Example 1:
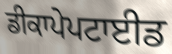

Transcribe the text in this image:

ਡੀਕਾਪੇਪਟਾਈਡ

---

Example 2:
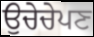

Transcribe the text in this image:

ਉਚੇਚੇਪਣ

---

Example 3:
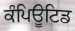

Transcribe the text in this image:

ਕੰਪਿਊਟਿਡ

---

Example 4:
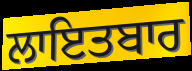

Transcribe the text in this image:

ਲਾਇਤਬਾਰ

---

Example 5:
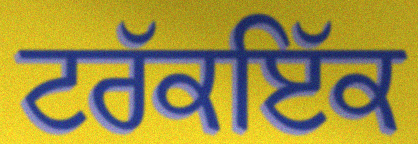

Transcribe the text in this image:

ਟਰੱਕਇੱਕ